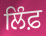
ਲਿੰਫ਼